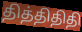
தித்திதிதி